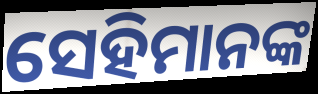
ସେହିମାନଙ୍କ